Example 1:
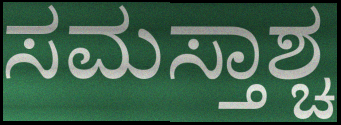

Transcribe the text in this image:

ಸಮಸ್ತಾಶ್ಚ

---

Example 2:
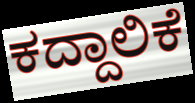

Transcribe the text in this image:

ಕದ್ದಾಲಿಕೆ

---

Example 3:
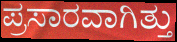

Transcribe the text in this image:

ಪ್ರಸಾರವಾಗಿತ್ತು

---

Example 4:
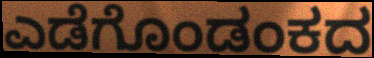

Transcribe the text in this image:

ಎಡೆಗೊಂಡಂಕದ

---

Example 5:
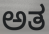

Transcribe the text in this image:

ಅತ